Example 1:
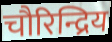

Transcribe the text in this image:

चौरिन्द्रिय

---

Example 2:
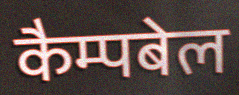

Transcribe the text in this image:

कैम्पबेल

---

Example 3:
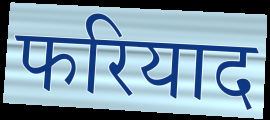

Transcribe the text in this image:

फरियाद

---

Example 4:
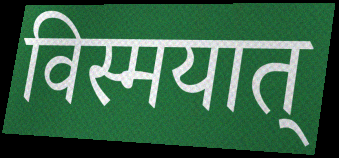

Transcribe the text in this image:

विस्मयात्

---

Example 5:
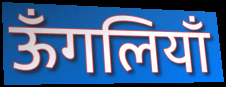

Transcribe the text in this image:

ऊँगलियाँ